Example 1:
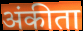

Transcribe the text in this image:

अंकीता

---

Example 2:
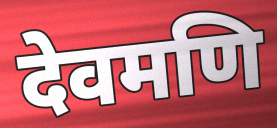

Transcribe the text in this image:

देवमणि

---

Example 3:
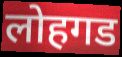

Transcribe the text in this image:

लोहगड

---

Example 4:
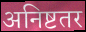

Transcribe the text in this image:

अनिष्टतर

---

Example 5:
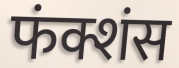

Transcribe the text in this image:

फंक्शंस